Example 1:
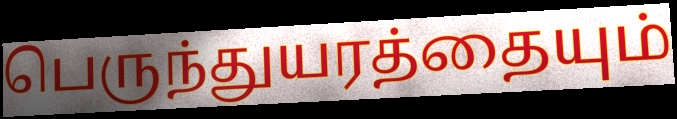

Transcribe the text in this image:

பெருந்துயரத்தையும்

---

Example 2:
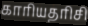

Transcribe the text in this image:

காரியதரிசி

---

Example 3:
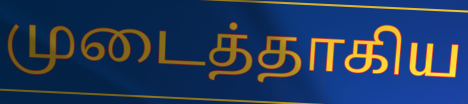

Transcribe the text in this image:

முடைத்தாகிய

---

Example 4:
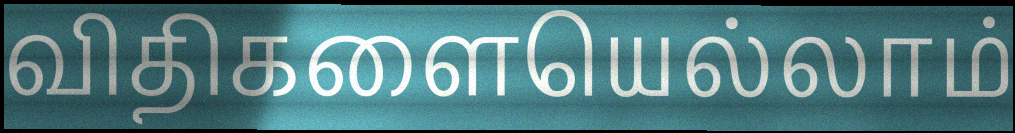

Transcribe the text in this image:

விதிகளையெல்லாம்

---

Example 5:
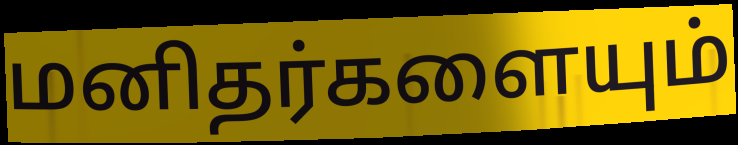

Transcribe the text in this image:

மனிதர்களையும்